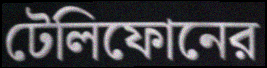
টেলিফোনের